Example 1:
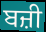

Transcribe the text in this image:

ਬਜ਼ੀ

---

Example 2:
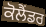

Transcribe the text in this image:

ਕੋਲੈਂਡਰ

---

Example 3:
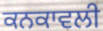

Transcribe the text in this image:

ਕਨਕਾਵਲੀ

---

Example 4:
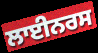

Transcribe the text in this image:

ਲਾਈਨਰਸ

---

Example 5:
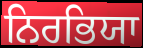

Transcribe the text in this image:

ਨਿਰਭਿਯਾ